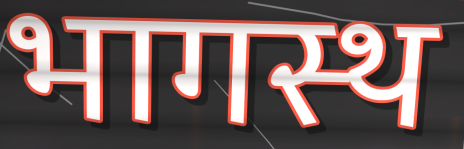
भागस्थ